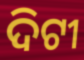
ଦିଟୀ